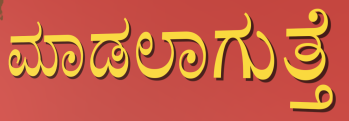
ಮಾಡಲಾಗುತ್ತೆ